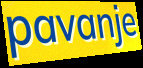
pavanje